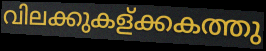
വിലക്കുകള്ക്കകത്തു